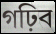
গঢ়িব